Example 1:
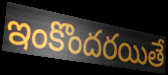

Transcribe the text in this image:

ఇంకొందరయితే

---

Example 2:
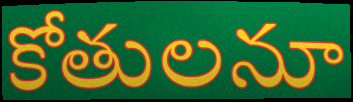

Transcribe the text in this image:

కోతులనూ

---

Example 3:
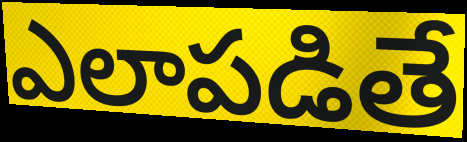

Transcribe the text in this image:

ఎలాపడితే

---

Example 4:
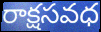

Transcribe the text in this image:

రాక్షసవధ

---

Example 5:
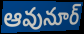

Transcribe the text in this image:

ఆవునూర్